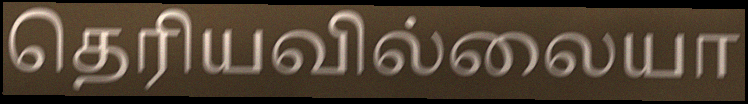
தெரியவில்லையா